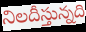
నిలదీస్తున్నది